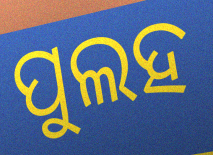
ପୁଲହ